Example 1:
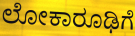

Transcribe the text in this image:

ಲೋಕಾರೂಢಿಗೆ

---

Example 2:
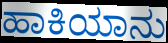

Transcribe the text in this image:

ಹಾಕಿಯಾನು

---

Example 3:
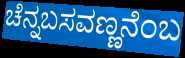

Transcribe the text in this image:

ಚೆನ್ನಬಸವಣ್ಣನೆಂಬ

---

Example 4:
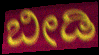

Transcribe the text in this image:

ಬೀಡಿ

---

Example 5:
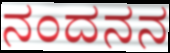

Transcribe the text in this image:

ನಂದನನ